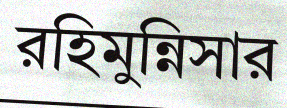
রহিমুন্নিসার